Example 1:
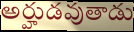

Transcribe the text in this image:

అర్హుడవుతాడు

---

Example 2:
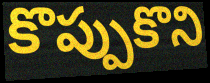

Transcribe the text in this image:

కొప్పుకొని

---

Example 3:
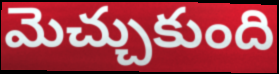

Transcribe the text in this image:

మెచ్చుకుంది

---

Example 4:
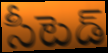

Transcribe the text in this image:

సీటెడ్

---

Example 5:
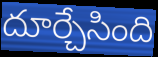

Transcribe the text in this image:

దూర్చేసింది